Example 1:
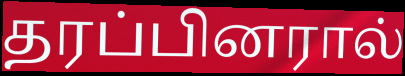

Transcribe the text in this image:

தரப்பினரால்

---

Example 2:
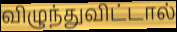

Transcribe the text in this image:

விழுந்துவிட்டால்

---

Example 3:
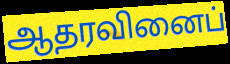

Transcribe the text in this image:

ஆதரவினைப்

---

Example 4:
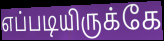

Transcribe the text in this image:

எப்படியிருக்கே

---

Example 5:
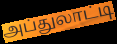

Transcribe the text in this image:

அப்துலாட்டி